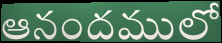
ఆనందములో